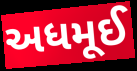
અધમૂઈ